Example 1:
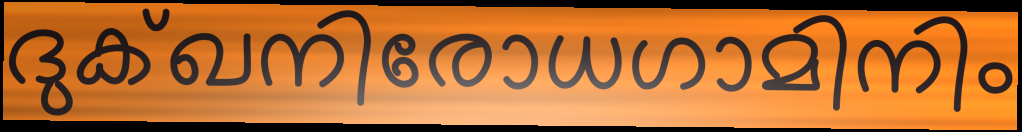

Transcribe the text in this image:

ദുക്ഖനിരോധഗാമിനിം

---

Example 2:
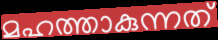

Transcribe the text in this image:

മഹത്താകുന്നത്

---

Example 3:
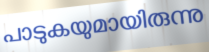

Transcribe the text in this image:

പാടുകയുമായിരുന്നു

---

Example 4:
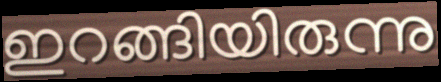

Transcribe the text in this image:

ഇറങ്ങിയിരുന്നു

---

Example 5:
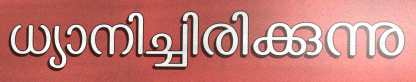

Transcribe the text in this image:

ധ്യാനിച്ചിരിക്കുന്നു